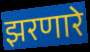
झरणारे